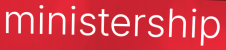
ministership